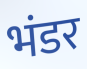
भंडर